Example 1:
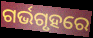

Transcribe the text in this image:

ଗର୍ଭଗୃହରେ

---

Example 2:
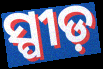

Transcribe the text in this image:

ସ୍ପୀଡ଼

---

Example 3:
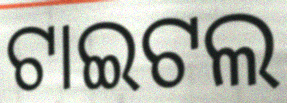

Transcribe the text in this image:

ଟାଇଟଲ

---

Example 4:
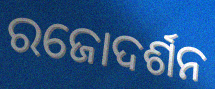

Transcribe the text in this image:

ରଜୋଦର୍ଶନ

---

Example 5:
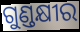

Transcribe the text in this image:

ଗୁଣ୍ଡକ୍ଷୀର